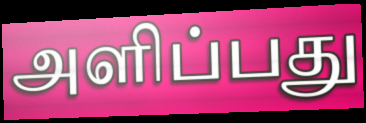
அளிப்பது